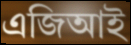
এজিআই